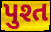
પુશ્ત